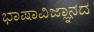
ಭಾಷಾವಿಜ್ಞಾನದ